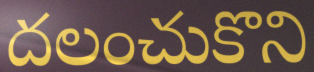
దలంచుకొని